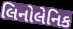
લિનોલેનિક